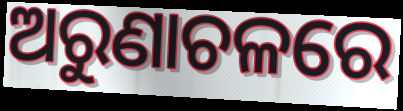
ଅରୁଣାଚଳରେ